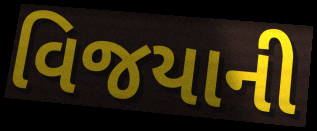
વિજયાની